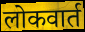
लोकवार्त